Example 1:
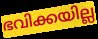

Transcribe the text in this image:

ഭവിക്കയില്ല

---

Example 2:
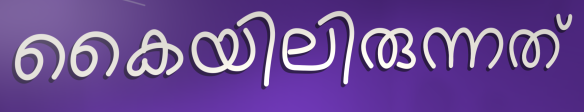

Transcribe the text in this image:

കൈയിലിരുന്നത്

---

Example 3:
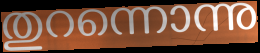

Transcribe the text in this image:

തുറന്നൊന്നു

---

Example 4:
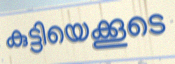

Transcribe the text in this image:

കുട്ടിയെക്കൂടെ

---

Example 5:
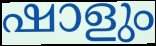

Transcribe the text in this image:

ഷാളും